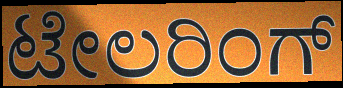
ಟೇಲರಿಂಗ್